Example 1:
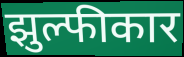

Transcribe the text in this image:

झुल्फीकार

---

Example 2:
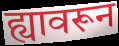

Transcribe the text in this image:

ह्यावरून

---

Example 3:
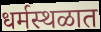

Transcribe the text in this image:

धर्मस्थळात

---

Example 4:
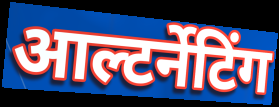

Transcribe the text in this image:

आल्टर्नेटिंग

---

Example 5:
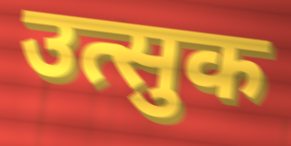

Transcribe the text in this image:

उत्सुक